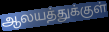
ஆலயத்துக்குள்